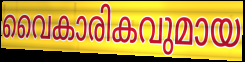
വൈകാരികവുമായ